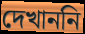
দেখাননি